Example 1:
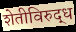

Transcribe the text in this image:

शेतीविरुद्ध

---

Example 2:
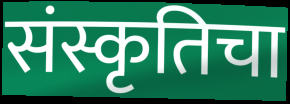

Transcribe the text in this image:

संस्कृतिचा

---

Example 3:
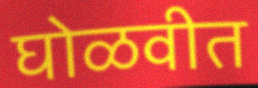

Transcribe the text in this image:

घोळवीत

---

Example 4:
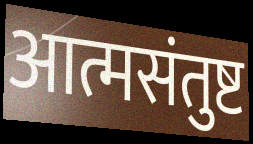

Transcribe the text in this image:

आत्मसंतुष्ट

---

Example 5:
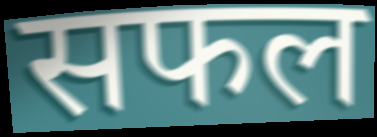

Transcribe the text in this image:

सफल